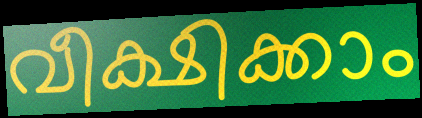
വീക്ഷിക്കാം